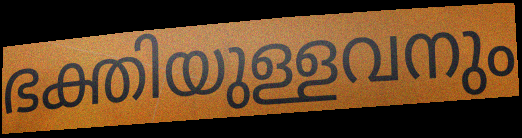
ഭക്തിയുള്ളവനും